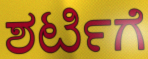
ಶರ್ಟಿಗೆ